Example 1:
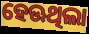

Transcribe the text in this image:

ହେଊଥିଲା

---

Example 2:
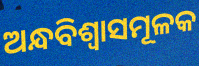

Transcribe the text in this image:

ଅନ୍ଧବିଶ୍ୱାସମୂଳକ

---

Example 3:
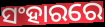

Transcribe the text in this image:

ସଂହାରରେ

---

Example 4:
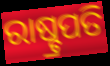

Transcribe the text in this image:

ରାଷ୍ଚ୍ରପତି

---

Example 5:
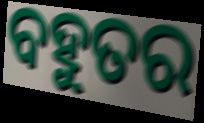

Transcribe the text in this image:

ବହୁତର